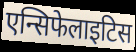
एन्सिफेलाइटिस